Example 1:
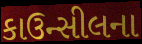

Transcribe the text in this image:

કાઉન્સીલના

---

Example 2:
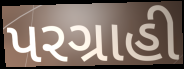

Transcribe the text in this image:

પરગ્રાહી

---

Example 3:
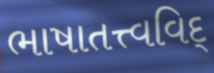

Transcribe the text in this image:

ભાષાતત્ત્વવિદ્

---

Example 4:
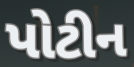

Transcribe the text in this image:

પોટીન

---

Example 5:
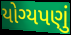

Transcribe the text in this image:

યોગ્યપણું